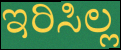
ಇರಿಸಿಲ್ಲ